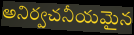
అనిర్వచనీయమైన